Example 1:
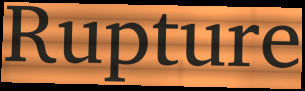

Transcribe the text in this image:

Rupture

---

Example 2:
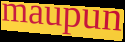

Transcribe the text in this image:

maupun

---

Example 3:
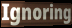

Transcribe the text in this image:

Ignoring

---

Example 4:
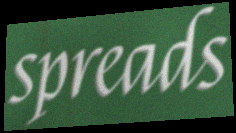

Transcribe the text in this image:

spreads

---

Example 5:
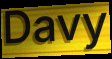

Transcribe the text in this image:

Davy